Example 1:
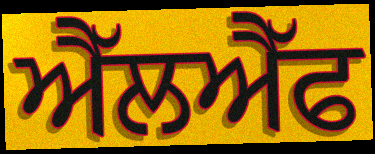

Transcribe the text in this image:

ਐੱਲਐੱਫ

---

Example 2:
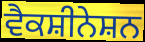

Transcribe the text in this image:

ਵੈਕਸ਼ੀਨੇਸ਼ਨ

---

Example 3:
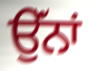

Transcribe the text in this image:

ਉਂੱਨਾਂ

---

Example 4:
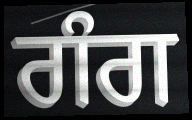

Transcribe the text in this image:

ਗੰਗ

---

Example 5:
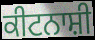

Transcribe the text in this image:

ਕੀਟਨਾਸ਼ੀ